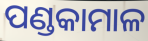
ପଣ୍ଡକାମାଳ